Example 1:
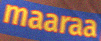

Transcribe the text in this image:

maaraa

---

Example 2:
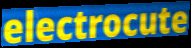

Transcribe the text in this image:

electrocute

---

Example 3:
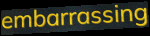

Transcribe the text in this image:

embarrassing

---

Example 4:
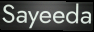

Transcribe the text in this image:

Sayeeda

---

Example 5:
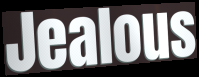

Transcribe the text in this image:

Jealous